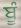
ਬੂੰ